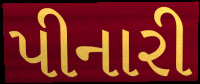
પીનારી